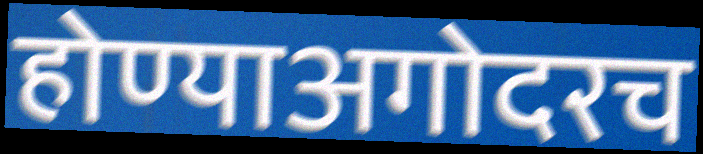
होण्याअगोदरच